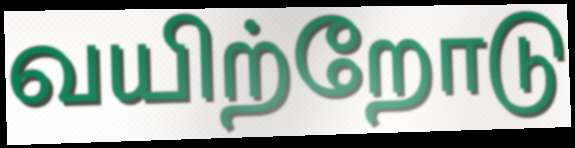
வயிற்றோடு